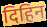
दिहिन